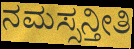
ನಮಸ್ಸನ್ತೀತಿ